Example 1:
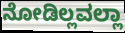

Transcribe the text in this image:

ನೋಡಿಲ್ಲವಲ್ಲಾ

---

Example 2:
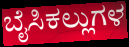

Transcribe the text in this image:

ಬೈಸಿಕಲ್ಲುಗಳ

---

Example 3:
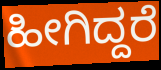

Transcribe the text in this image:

ಹೀಗಿದ್ದರೆ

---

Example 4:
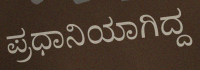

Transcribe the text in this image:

ಪ್ರಧಾನಿಯಾಗಿದ್ದ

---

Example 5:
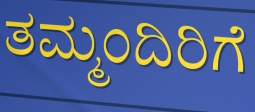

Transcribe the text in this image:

ತಮ್ಮಂದಿರಿಗೆ